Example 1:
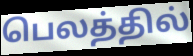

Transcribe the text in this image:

பெலத்தில்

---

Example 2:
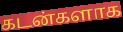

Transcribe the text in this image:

கடன்களாக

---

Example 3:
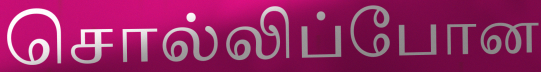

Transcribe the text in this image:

சொல்லிப்போன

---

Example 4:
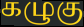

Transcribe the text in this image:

கழுகு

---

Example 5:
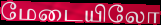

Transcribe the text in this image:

மேடையிலோ